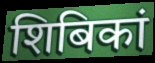
शिबिकां